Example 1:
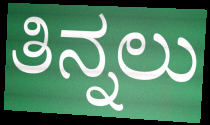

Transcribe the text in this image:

ತಿನ್ನಲು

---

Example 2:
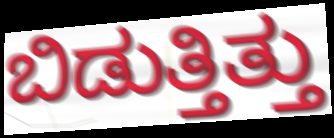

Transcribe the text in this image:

ಬಿಡುತ್ತಿತ್ತು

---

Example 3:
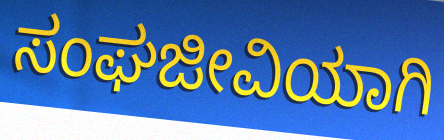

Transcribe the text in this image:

ಸಂಘಜೀವಿಯಾಗಿ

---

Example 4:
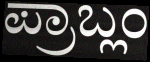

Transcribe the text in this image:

ಪ್ರಾಬ್ಲಂ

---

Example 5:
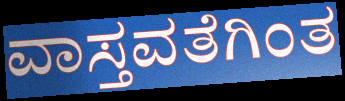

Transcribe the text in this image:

ವಾಸ್ತವತೆಗಿಂತ